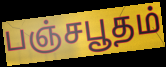
பஞ்சபூதம்